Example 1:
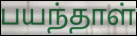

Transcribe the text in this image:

பயந்தாள்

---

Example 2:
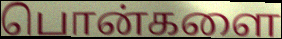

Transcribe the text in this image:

பொன்களை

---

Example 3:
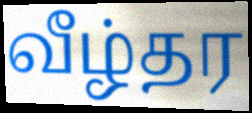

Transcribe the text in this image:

வீழ்தர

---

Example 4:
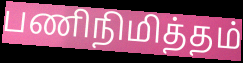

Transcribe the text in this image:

பணிநிமித்தம்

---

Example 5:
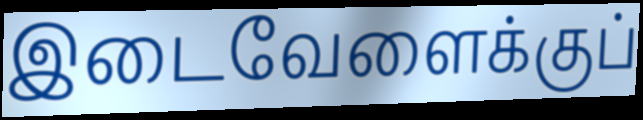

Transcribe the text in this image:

இடைவேளைக்குப்